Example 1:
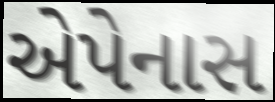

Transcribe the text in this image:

એપેનાસ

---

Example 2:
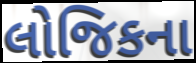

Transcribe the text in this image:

લોજિકના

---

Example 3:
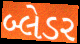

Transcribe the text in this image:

બ્લેડર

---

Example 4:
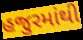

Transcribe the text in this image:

હજુરમાંથી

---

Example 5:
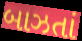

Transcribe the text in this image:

બાઝતાં